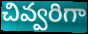
చివ్వరిగా